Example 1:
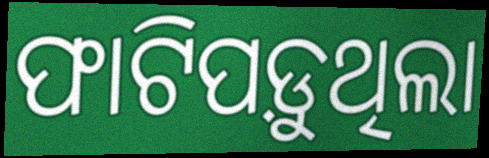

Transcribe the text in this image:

ଫାଟିପଡ଼ୁଥିଲା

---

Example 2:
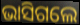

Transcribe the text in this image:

ଭାସିଗଲେ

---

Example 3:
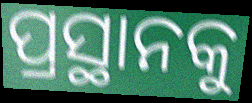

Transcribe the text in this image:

ପ୍ରସ୍ଥାନକୁ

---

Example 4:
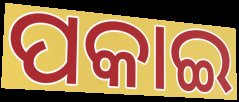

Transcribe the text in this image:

ପକାଇ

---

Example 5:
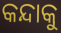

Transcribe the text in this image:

କନ୍ଦାକୁ